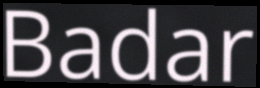
Badar